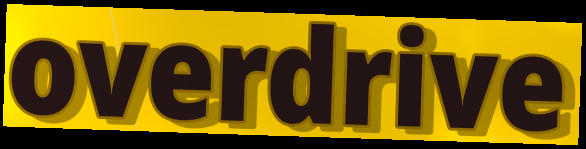
overdrive